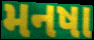
મનષા